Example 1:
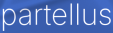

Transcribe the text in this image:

partellus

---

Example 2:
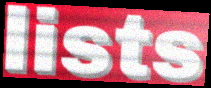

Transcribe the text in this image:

lists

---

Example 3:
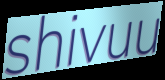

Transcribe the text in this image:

shivuu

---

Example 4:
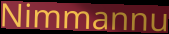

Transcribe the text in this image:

Nimmannu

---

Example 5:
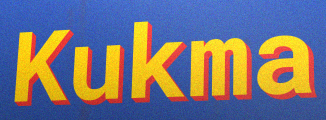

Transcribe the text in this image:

Kukma